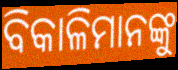
ବିକାଳିମାନଙ୍କୁ